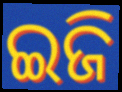
ଇଜି